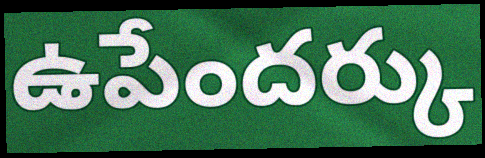
ఉపేందర్కు